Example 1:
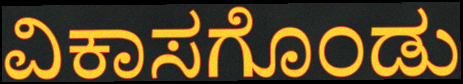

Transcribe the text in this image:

ವಿಕಾಸಗೊಂಡು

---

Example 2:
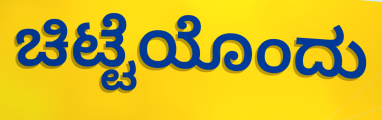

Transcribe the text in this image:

ಚಿಟ್ಟೆಯೊಂದು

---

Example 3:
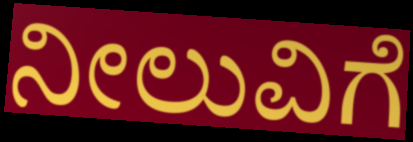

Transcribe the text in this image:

ನೀಲುವಿಗೆ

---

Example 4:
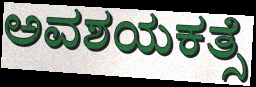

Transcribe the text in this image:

ಅವಶಯಕತ್ಸೆ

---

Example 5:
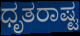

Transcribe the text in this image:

ಧೃತರಾಷ್ಟ